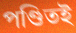
পণ্ডিতই